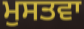
ਮੁਸਤਵਾ